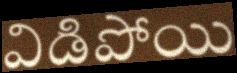
విడిపోయి